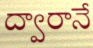
ద్వారానే